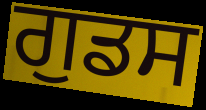
ਗੁਡਸ